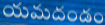
యమదండం